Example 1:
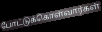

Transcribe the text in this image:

போட்டுக்கொள்வார்கள்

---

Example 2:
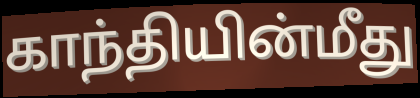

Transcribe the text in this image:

காந்தியின்மீது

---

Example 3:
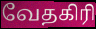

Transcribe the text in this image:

வேதகிரி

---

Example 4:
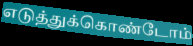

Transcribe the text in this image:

எடுத்துக்கொண்டோம்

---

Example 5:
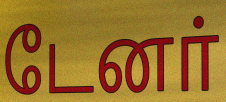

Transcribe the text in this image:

டேனர்